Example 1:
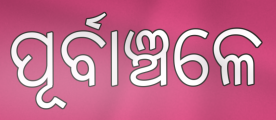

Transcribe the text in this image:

ପୂର୍ବାଞ୍ଚଳେ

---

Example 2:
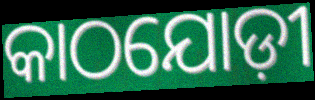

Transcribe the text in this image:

କାଠଯୋଡ଼ୀ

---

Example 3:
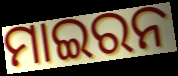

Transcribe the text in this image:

ମାଇରନ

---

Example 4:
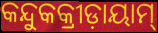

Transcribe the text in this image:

କନ୍ଦୁକକ୍ରୀଡ଼ାୟାମ୍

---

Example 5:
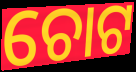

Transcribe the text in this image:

ଚୋଟ